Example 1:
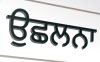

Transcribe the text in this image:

ਉਛਲਨਾ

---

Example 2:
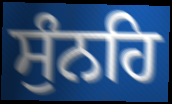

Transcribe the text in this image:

ਸੁੰਨਹਿ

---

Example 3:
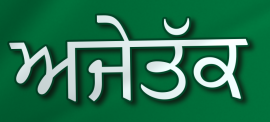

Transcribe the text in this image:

ਅਜੇਤੱਕ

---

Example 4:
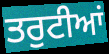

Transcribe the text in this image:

ਤਰੁਟੀਆਂ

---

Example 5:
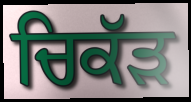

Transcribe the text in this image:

ਚਿਕੱੜ